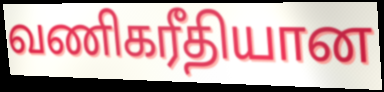
வணிகரீதியான